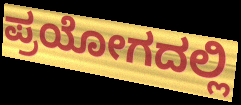
ಪ್ರಯೋಗದಲ್ಲಿ